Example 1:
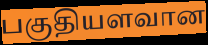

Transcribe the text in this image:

பகுதியளவான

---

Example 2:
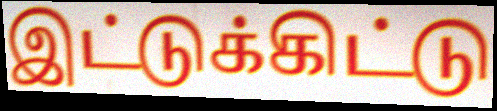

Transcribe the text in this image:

இட்டுக்கிட்டு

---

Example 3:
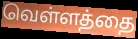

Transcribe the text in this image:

வெள்ளத்தை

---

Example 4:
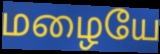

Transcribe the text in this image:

மழையே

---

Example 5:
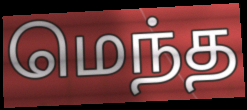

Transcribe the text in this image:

மெந்த